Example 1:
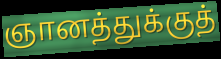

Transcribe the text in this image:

ஞானத்துக்குத்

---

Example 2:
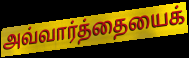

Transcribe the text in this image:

அவ்வார்த்தையைக்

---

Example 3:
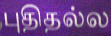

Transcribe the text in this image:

புதிதல்ல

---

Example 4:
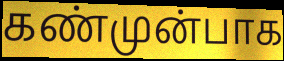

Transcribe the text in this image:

கண்முன்பாக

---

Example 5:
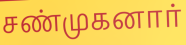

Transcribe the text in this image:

சண்முகனார்